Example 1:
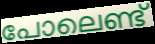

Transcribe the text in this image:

പോലെണ്ട്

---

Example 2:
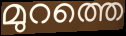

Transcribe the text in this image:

മുറത്തെ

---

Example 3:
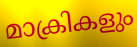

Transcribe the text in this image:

മാക്രികളും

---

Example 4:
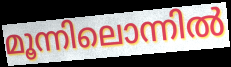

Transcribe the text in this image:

മൂന്നിലൊന്നിൽ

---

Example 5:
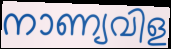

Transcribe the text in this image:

നാണ്യവിള